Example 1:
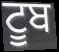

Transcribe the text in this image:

ਟੂਬ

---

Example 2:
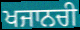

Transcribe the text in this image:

ਖਜਾਨਚੀ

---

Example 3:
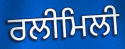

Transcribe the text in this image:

ਰਲੀਮਿਲੀ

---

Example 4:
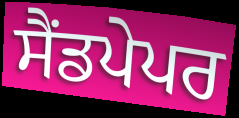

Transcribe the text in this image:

ਸੈਂਡਪੇਪਰ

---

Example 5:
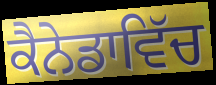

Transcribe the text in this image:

ਕੈਨੇਡਾਵਿੱਚ